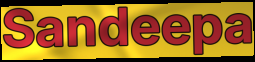
Sandeepa